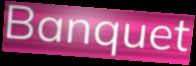
Banquet